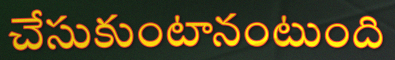
చేసుకుంటానంటుంది